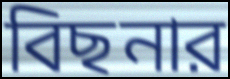
বিছনার